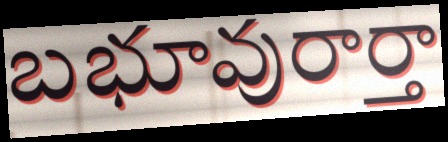
బభూవురార్తా